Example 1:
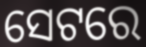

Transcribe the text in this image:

ସେଟରେ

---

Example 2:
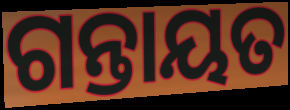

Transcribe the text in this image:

ଗନ୍ତାୟତ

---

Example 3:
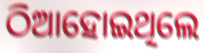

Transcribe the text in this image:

ଠିଆହୋଇଥିଲେ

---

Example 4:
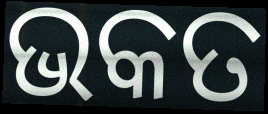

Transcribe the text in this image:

ଭକତ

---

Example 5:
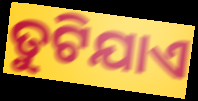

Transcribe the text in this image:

ତୁଟିଯାଏ